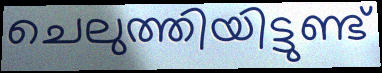
ചെലുത്തിയിട്ടുണ്ട്